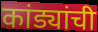
कांड्यांची